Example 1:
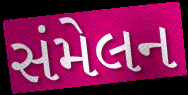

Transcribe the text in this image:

સંમેલન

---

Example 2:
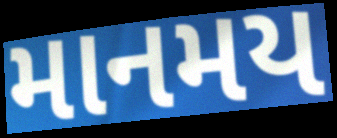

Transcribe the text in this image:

માનમય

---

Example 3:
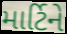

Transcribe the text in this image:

માર્ટિને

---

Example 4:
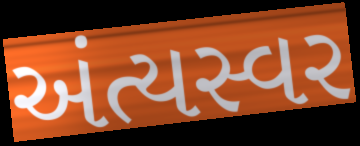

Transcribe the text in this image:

અંત્યસ્વર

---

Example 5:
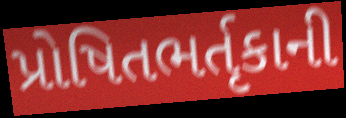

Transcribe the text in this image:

પ્રોષિતભર્તૃકાની